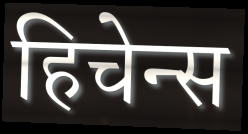
हिचेन्स